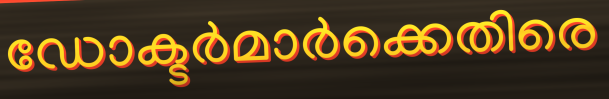
ഡോക്ടർമാർക്കെതിരെ